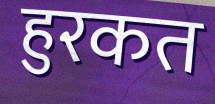
हुरकत